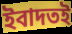
ইবাদতই